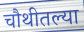
चौथीतल्या